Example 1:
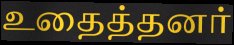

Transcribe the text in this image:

உதைத்தனர்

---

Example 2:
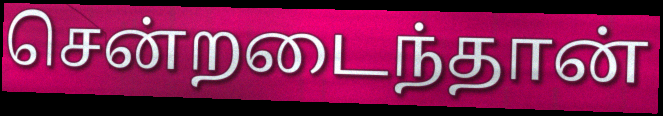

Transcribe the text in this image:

சென்றடைந்தான்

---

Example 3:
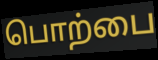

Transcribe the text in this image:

பொற்பை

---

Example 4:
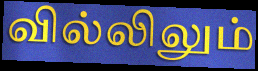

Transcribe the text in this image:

வில்லிலும்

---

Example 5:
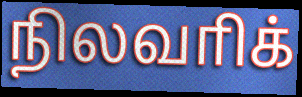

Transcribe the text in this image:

நிலவரிக்